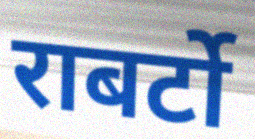
राबर्टो